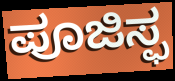
ಪೂಜಿಸ್ಫ